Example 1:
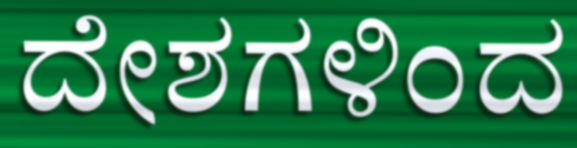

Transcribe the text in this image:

ದೇಶಗಳಿಂದ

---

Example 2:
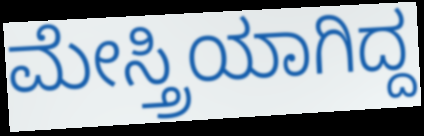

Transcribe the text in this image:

ಮೇಸ್ತ್ರಿಯಾಗಿದ್ದ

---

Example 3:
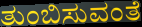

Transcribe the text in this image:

ತುಂಬಿಸುವಂತೆ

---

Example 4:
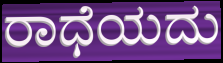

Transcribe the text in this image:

ರಾಧೆಯದು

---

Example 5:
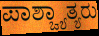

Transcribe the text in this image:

ಪಾಶ್ಚ್ಯಾತ್ಯರು